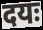
दयः